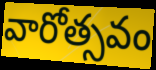
వారోత్సవం